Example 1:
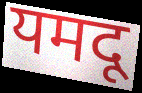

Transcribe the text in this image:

यमदू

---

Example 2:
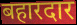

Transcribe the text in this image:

बहारदार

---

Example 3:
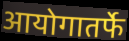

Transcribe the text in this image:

आयोगातर्फे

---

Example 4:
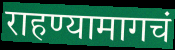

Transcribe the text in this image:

राहण्यामागचं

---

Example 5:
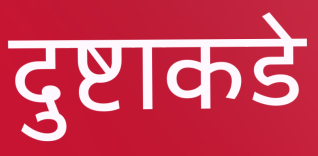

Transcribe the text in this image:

दुष्टाकडे